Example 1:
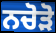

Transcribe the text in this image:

ਨਚੋੜੋ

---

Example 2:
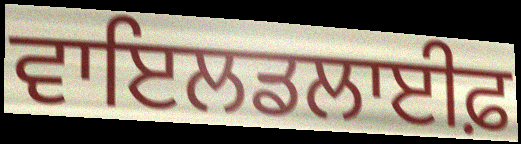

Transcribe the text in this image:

ਵਾਇਲਡਲਾਈਫ਼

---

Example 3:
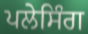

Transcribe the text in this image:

ਪਲੇਸਿੰਗ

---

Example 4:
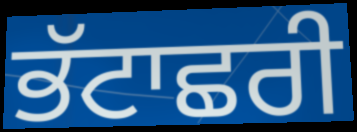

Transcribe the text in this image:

ਭੱਟਾਛਰੀ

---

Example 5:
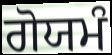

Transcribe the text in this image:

ਗੋਯਮੰ